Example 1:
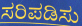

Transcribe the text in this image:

ಸರಿಪಡಿಸು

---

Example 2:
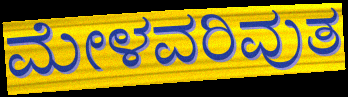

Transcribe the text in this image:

ಮೇಳವರಿವುತ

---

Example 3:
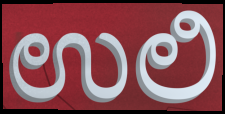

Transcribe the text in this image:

ಉಲಿ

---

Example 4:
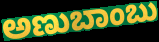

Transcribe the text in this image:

ಅಣುಬಾಂಬು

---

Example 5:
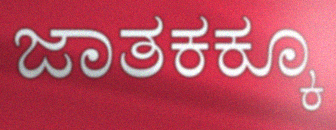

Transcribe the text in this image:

ಜಾತಕಕ್ಕೂ